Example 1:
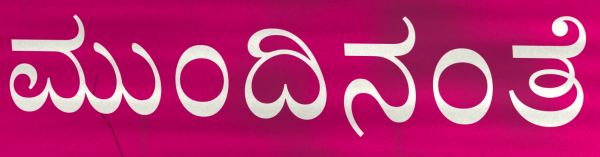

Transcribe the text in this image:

ಮುಂದಿನಂತೆ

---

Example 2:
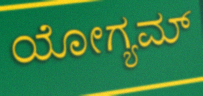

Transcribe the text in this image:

ಯೋಗ್ಯಮ್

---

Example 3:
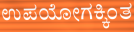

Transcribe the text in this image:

ಉಪಯೋಗಕ್ಕಿಂತ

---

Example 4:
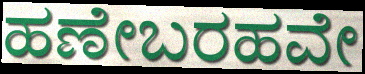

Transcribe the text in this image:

ಹಣೇಬರಹವೇ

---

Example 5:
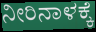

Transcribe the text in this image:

ನೀರಿನಾಳಕ್ಕೆ